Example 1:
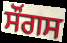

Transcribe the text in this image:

ਸੌਂਗਸ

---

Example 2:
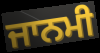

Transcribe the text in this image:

ਜਾਨਮੀ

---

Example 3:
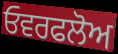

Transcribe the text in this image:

ਓਵਰਫਲੋਅ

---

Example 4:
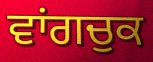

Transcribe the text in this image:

ਵਾਂਗਚੁਕ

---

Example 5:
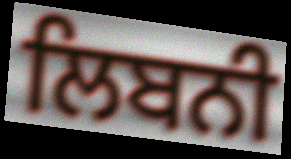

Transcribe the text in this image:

ਲਿਬਨੀ